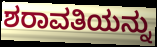
ಶರಾವತಿಯನ್ನು